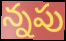
న్నపు